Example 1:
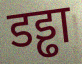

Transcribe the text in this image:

डड्ढा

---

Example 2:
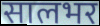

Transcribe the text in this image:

सालभर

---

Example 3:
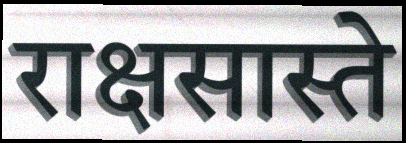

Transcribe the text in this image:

राक्षसास्ते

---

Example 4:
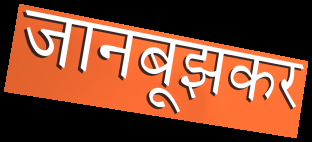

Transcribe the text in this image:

जानबूझकर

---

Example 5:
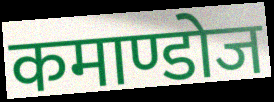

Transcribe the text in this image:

कमाण्डोज